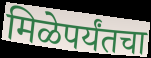
मिळेपर्यंतचा